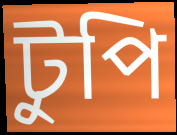
টুপি